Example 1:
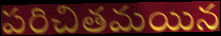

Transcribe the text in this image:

పరిచితమయిన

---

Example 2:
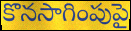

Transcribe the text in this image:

కొనసాగింపుపై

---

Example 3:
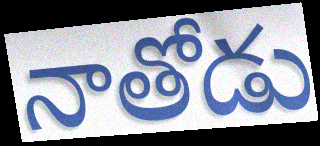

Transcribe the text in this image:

నాతోడు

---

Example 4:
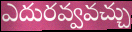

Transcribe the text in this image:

ఎదురవ్వవచ్చు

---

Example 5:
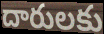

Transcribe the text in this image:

దారులకు